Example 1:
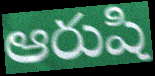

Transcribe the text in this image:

ఆరుషి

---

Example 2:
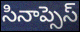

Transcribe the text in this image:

సినాప్సెస్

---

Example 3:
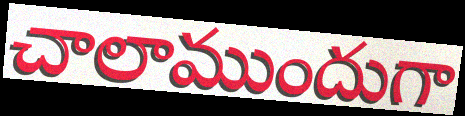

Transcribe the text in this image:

చాలాముందుగా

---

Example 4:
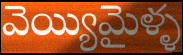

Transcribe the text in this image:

వెయ్యిమైళ్ళ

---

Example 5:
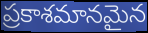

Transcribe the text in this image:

ప్రకాశమానమైన